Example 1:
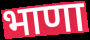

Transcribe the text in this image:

भाणा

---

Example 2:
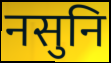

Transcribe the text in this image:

नसुनि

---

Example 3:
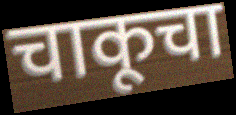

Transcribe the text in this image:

चाकूचा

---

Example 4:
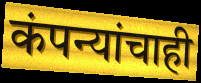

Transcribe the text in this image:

कंपन्यांचाही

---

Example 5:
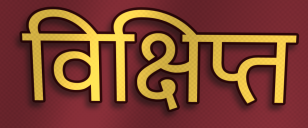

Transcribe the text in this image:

विक्षिप्त